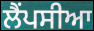
ਲੈਂਪਸੀਆ